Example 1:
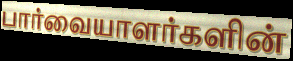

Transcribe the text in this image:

பார்வையாளர்களின்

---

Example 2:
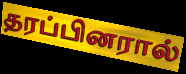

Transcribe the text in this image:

தரப்பினரால்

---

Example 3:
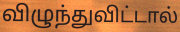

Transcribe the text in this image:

விழுந்துவிட்டால்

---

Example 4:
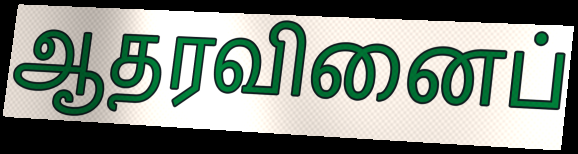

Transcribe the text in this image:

ஆதரவினைப்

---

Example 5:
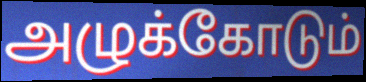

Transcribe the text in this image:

அழுக்கோடும்